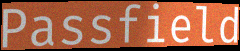
Passfield